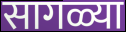
सागळ्या